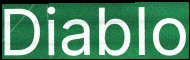
Diablo